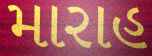
મારાહ